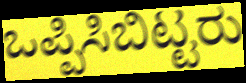
ಒಪ್ಪಿಸಿಬಿಟ್ಟರು